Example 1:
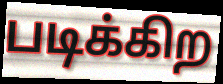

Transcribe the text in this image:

படிக்கிற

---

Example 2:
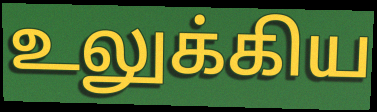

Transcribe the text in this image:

உலுக்கிய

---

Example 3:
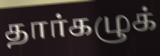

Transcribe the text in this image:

தார்கழுக்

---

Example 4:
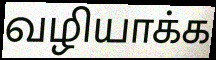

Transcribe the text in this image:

வழியாக்க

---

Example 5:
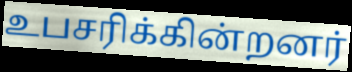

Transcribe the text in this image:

உபசரிக்கின்றனர்